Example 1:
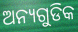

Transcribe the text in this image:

ଅନ୍ୟଗୁଡିକ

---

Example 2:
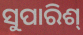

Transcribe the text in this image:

ସୁପାରିଶ୍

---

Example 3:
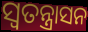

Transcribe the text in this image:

ସ୍ଵତନ୍ତ୍ରାସନ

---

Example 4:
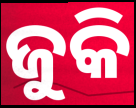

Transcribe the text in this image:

ଜୁକି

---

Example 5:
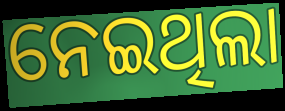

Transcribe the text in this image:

ନେଇଥିଲା